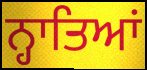
ਨ੍ਹਾਤਿਆਂ